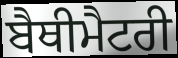
ਬੈਥੀਮੈਟਰੀ